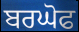
ਬਰਘੋਫ